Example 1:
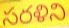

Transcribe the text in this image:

సరళిని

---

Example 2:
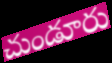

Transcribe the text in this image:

చుండూరు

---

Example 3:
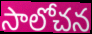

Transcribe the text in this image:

సాలోచన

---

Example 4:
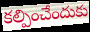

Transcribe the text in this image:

కల్పించేందుకు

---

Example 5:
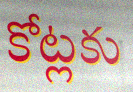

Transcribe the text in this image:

కోట్లకు